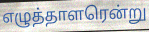
எழுத்தாளரென்று